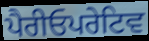
ਪੈਰੀਓਪਰੇਟਿਵ